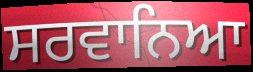
ਸਰਵਾਨਿਆ